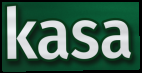
kasa